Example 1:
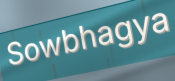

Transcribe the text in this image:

Sowbhagya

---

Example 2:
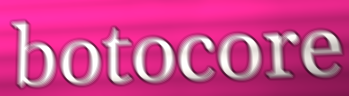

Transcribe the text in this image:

botocore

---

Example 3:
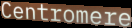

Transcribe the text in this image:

Centromere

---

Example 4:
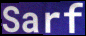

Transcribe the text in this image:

Sarf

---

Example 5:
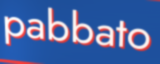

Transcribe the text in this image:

pabbato